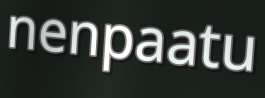
nenpaatu